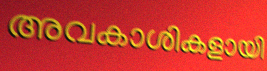
അവകാശികളായി